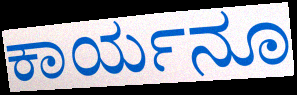
ಕಾರ್ಯನೂ